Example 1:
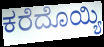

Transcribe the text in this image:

ಕರೆದೊಯ್ಯಿ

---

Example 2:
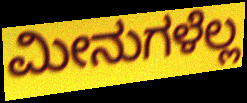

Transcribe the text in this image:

ಮೀನುಗಳೆಲ್ಲ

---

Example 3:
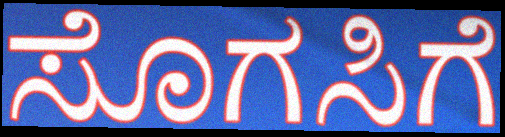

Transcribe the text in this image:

ಸೊಗಸಿಗೆ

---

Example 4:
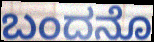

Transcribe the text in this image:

ಬಂದನೊ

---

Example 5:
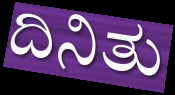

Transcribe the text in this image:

ದಿನಿತು